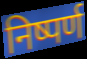
निष्पर्ण